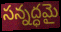
సన్నద్ధమై